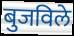
बुजविले